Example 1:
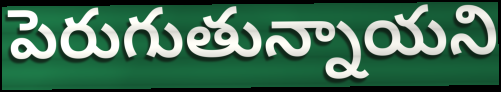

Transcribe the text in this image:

పెరుగుతున్నాయని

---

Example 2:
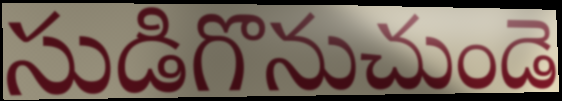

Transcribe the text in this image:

సుడిగొనుచుండె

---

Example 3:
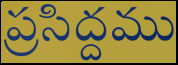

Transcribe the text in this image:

ప్రసిద్దము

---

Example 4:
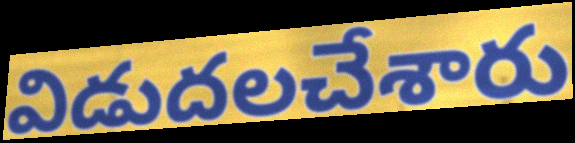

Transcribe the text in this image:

విడుదలచేశారు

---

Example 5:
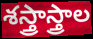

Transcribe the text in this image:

శస్త్రాస్త్రాల